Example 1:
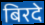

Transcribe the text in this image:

बिरदे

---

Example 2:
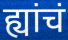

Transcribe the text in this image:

ह्यांचं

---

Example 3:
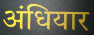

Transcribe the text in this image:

अंधियार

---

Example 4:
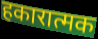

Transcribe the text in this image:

हकारात्मक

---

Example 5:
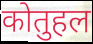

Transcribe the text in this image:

कोतुहल